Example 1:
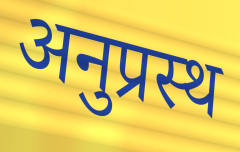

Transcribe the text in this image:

अनुप्रस्थ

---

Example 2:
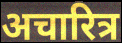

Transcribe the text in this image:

अचारित्र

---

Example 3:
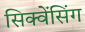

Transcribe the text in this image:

सिक्वेंसिंग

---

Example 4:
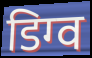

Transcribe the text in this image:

डिग्व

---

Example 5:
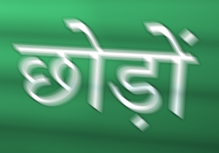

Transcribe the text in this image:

छोड़ों